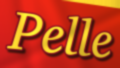
Pelle